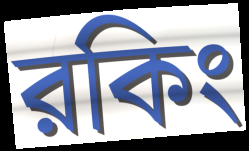
রকিং